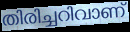
തിരിച്ചറിവാണ്